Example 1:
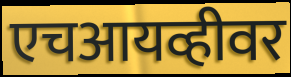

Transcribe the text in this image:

एचआयव्हीवर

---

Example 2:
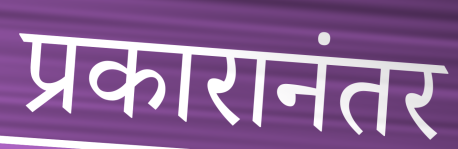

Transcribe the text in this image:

प्रकारानंतर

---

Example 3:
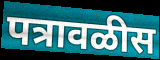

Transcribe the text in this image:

पत्रावळीस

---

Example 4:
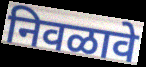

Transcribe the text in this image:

निवळावे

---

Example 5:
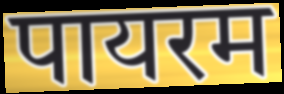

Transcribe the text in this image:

पायरम